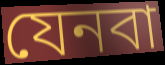
যেনবা